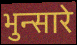
भुन्सारे